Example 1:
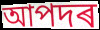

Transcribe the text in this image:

আপদৰ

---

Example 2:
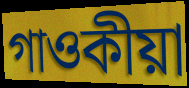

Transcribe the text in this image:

গাওকীয়া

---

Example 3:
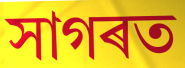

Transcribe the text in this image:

সাগৰত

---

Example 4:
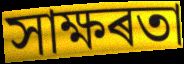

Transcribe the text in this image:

সাক্ষৰতা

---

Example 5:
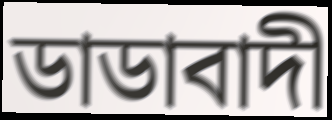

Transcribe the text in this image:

ডাডাবাদী